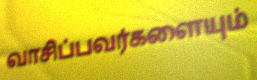
வாசிப்பவர்களையும்